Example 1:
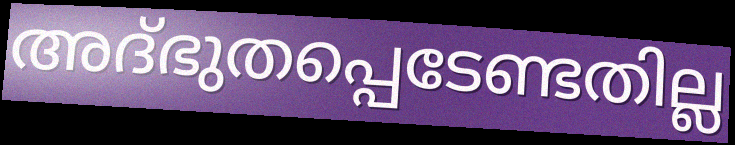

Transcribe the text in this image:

അദ്ഭുതപ്പെടേണ്ടതില്ല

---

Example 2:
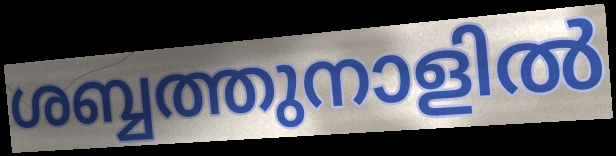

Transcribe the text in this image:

ശബ്ബത്തുനാളിൽ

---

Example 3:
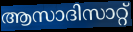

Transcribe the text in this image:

ആസാദിസാറ്റ്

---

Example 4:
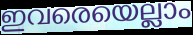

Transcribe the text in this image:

ഇവരെയെല്ലാം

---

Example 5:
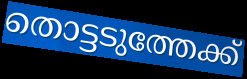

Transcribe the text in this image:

തൊട്ടടുത്തേക്ക്